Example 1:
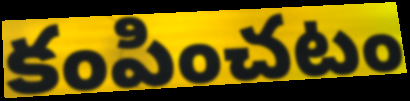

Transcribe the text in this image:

కంపించటం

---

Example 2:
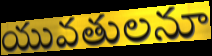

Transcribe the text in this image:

యువతులనూ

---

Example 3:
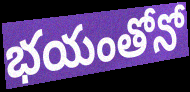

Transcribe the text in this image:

భయంతోనో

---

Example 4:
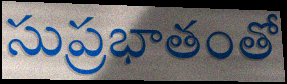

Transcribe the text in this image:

సుప్రభాతంతో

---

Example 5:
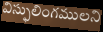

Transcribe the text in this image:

విస్ఫులింగములని